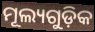
ମୂଲ୍ୟଗୁଡ଼ିକ